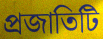
প্রজাতিটি